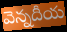
వెన్నదీయ